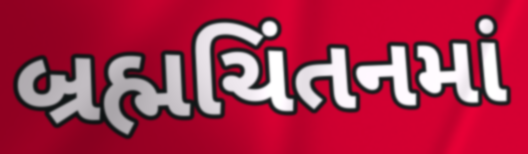
બ્રહ્મચિંતનમાં